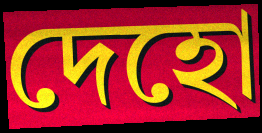
দেহো